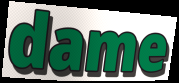
dame